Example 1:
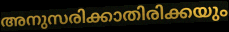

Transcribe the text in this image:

അനുസരിക്കാതിരിക്കയും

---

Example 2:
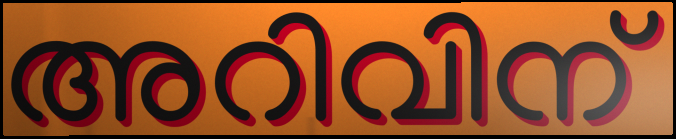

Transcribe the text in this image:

അറിവിന്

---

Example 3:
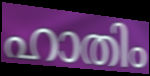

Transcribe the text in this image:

ഹാതിം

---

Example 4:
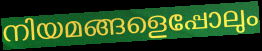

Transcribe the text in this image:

നിയമങ്ങളെപ്പോലും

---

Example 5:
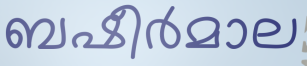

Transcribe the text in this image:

ബഷീർമാല